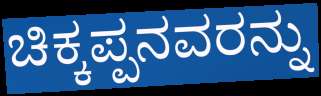
ಚಿಕ್ಕಪ್ಪನವರನ್ನು